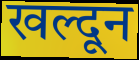
खल्दून